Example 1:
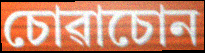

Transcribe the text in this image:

চোৱাচোন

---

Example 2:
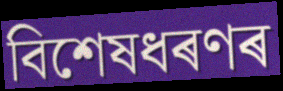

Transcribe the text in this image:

বিশেষধৰণৰ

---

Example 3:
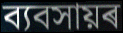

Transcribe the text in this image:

ব্যবসায়ৰ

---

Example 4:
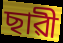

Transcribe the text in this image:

ছাৱী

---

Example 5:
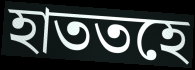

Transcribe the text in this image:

হাততহে